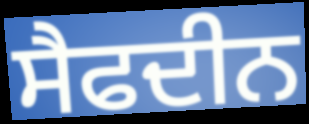
ਸੈਫਦੀਨ